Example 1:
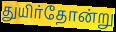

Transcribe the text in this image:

துயிர்தோன்று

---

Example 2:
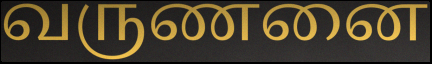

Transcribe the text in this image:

வருணனை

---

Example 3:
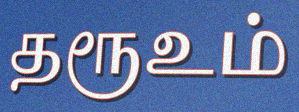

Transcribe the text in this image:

தரூஉம்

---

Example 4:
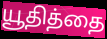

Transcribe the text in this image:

யூதித்தை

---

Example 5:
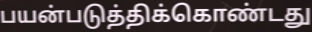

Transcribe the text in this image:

பயன்படுத்திக்கொண்டது